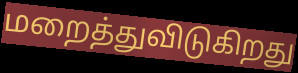
மறைத்துவிடுகிறது